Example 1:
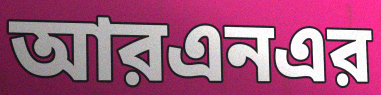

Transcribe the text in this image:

আরএনএর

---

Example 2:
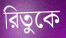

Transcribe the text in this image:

রিতুকে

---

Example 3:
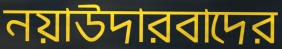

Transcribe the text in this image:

নয়াউদারবাদের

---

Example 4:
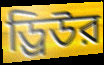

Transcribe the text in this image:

ড্রিউর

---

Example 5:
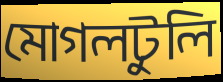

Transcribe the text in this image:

মোগলটুলি